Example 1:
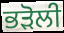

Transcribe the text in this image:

ਭੜੋਲੀ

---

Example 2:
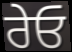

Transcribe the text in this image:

ਰੇਓ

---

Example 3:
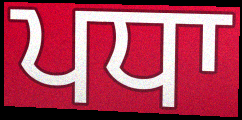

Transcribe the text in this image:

ਪਧਾ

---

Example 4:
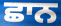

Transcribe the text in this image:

ਛਾਨ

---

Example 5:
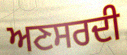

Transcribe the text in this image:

ਅਣਸਰਦੀ